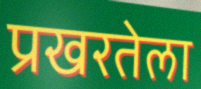
प्रखरतेला